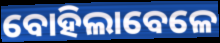
ବୋହିଲାବେଳେ